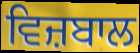
ਵਿਜ਼ਬਾਲ